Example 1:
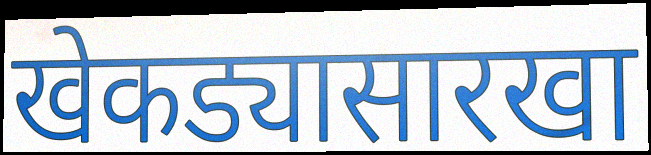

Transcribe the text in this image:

खेकड्यासारखा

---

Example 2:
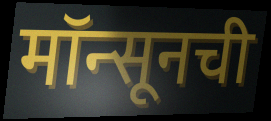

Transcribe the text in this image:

मॉन्सूनची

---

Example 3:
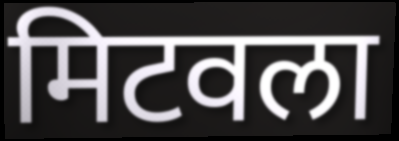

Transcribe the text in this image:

मिटवला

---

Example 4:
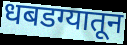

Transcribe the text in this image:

धबडग्यातून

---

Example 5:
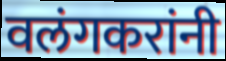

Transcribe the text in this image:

वलंगकरांनी